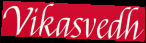
Vikasvedh